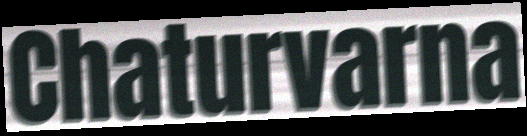
Chaturvarna